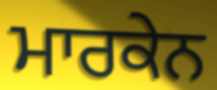
ਮਾਰਕੇਨ